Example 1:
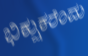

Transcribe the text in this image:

ಭಿಕ್ಷುಕರೆಂದು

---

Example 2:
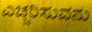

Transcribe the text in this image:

ಎಚ್ಚರಿಸುವನು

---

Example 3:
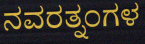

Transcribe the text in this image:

ನವರತ್ನಂಗಳ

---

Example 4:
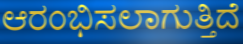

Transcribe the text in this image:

ಆರಂಭಿಸಲಾಗುತ್ತಿದೆ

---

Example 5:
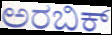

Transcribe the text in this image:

ಅರಬಿಕ್